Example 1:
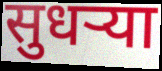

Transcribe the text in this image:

सुधर्‍या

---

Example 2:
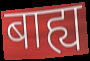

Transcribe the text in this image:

बाह्य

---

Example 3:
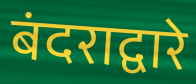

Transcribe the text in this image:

बंदराद्वारे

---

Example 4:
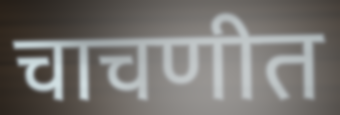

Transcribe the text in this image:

चाचणीत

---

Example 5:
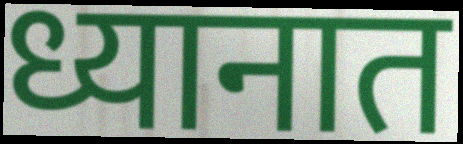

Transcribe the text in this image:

ध्यानात